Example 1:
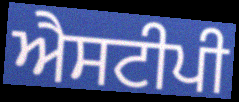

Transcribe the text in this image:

ਐਸਟੀਪੀ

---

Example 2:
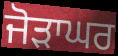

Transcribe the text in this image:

ਜੋੜਾਘਰ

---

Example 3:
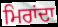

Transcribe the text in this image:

ਮਿਰਾਂਦਾ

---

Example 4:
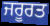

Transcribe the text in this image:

ਜਰੂਰਤ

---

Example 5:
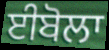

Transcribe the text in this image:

ਈਬੋਲਾ